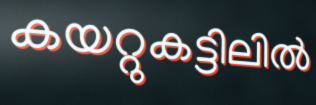
കയറ്റുകട്ടിലിൽ